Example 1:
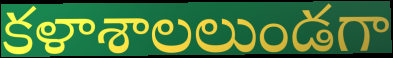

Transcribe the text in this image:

కళాశాలలుండగా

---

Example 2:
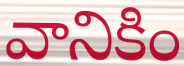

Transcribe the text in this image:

వానికిం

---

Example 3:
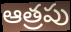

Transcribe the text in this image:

ఆత్రపు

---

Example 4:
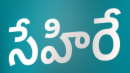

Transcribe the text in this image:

సేహిరే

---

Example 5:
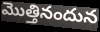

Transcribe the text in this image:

మొత్తినందున